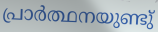
പ്രാർത്ഥനയുണ്ടു്